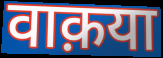
वाक़या